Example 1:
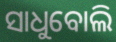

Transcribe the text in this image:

ସାଧୁବୋଲି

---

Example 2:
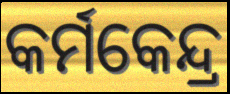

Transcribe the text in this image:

କର୍ମକେନ୍ଦ୍ର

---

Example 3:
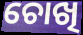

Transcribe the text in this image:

ଚୋଖି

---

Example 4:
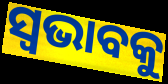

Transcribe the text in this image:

ସ୍ୱଭାବକୁ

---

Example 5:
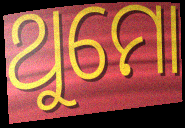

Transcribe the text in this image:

ଥୁମୋ